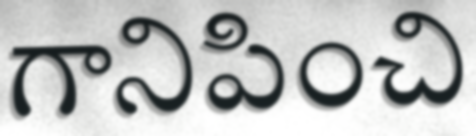
గానిపించి